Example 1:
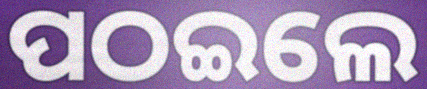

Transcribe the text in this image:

ପଠଇଲେ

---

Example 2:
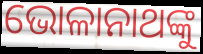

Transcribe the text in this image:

ଭୋଳାନାଥଙ୍କୁ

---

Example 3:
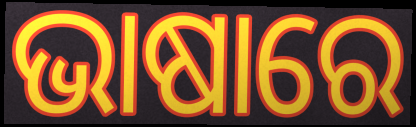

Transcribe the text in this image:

ଭାଷାରେ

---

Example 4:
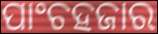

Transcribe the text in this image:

ପାଂଚହଜାର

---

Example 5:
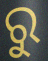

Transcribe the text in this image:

ରୁ